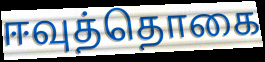
ஈவுத்தொகை